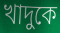
খাদুকে